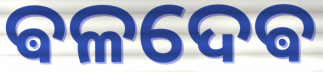
ଵଳଦେଵ